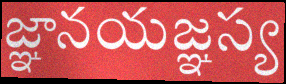
జ్ఞానయజ్ఞస్య